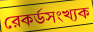
রেকর্ডসংখ্যক